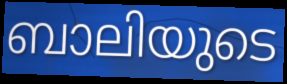
ബാലിയുടെ